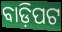
ବାଡ଼ିପଟ